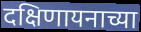
दक्षिणायनाच्या